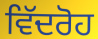
ਵਿੱਦਰੋਹ